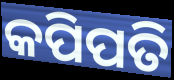
କପିପତି